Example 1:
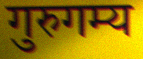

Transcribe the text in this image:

गुरुगम्य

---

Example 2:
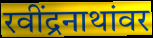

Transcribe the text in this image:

रवींद्रनाथांवर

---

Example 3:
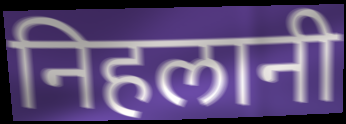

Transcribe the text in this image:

निहलानी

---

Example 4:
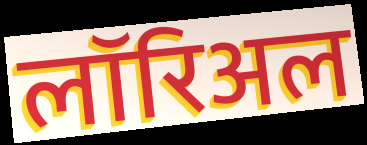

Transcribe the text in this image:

लॉरिअल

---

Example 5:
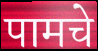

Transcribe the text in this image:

पामचे